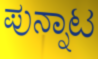
ಪುನ್ನಾಟ